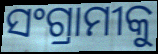
ସଂଗ୍ରାମୀକୁ